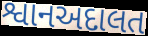
શ્વાનઅદાલત